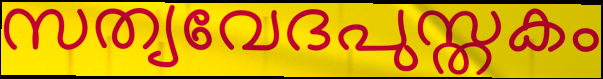
സത്യവേദപുസ്തകം